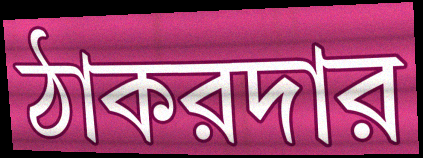
ঠাকরদার